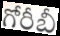
గోరీబీ